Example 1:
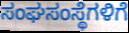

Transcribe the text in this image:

ಸಂಘಸಂಸ್ಥೆಗಳಿಗೆ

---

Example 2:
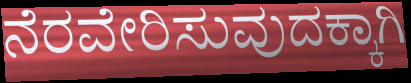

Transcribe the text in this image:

ನೆರವೇರಿಸುವುದಕ್ಕಾಗಿ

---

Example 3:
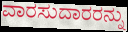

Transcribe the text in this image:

ವಾರಸುದಾರರನ್ನು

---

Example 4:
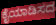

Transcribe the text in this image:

ಕೈಯಾಡಿಸದ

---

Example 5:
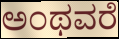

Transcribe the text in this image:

ಅಂಥವರೆ